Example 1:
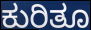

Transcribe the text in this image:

ಕುರಿತೂ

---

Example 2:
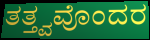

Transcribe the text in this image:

ತತ್ತ್ವವೊಂದರ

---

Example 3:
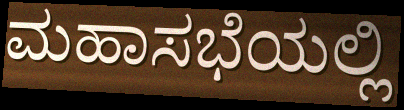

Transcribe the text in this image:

ಮಹಾಸಭೆಯಲ್ಲಿ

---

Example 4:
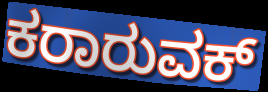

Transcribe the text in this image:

ಕರಾರುವಕ್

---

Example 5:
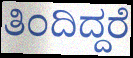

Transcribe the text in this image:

ತಿಂದಿದ್ದರೆ